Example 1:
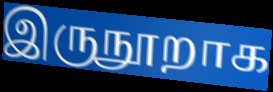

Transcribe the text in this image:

இருநூறாக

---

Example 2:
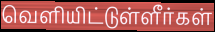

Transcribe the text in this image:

வெளியிட்டுள்ளீர்கள்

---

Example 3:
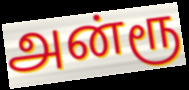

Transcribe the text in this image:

அன்ரூ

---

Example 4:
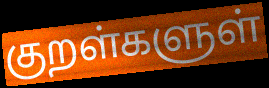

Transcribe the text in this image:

குறள்களுள்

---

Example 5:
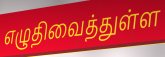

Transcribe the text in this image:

எழுதிவைத்துள்ள